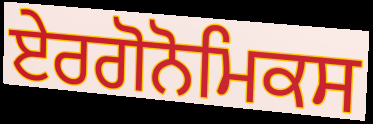
ਏਰਗੋਨੋਮਿਕਸ